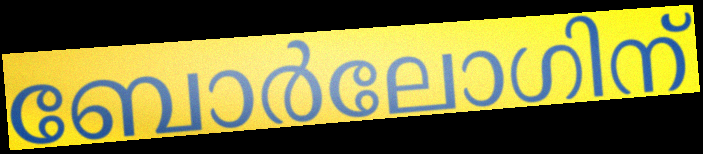
ബോർലോഗിന്